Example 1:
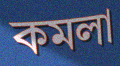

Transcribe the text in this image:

কমলা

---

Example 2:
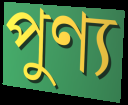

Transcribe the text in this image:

পুণ্য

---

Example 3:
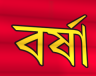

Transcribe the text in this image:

বৰ্ষা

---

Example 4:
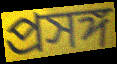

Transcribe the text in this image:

প্ৰসঙ্গ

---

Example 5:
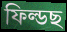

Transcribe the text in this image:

ফিল্ডছ